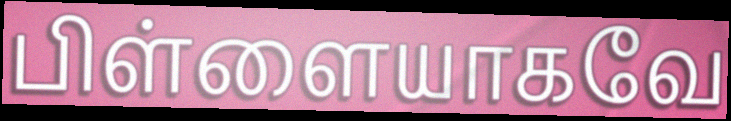
பிள்ளையாகவே